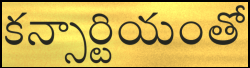
కన్సార్టియంతో